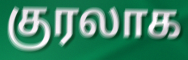
குரலாக